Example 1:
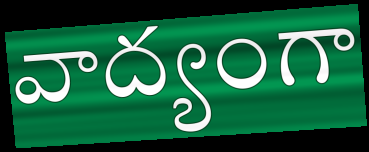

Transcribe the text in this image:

వాద్యంగా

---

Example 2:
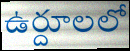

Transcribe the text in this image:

ఉర్దూలలో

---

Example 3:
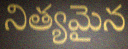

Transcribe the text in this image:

నిత్యమైన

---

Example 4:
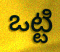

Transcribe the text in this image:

ఒట్టి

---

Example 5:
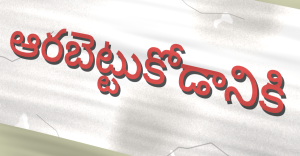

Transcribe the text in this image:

ఆరబెట్టుకోడానికి